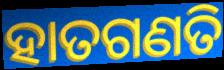
ହାତଗଣତି